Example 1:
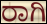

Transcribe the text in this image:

ರಾಗಿ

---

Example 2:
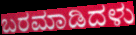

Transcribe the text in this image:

ಬರಮಾಡಿದಳು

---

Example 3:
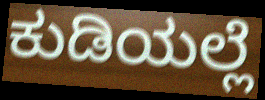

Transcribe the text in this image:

ಕುಡಿಯಲ್ಲೆ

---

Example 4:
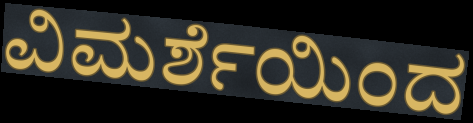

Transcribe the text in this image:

ವಿಮರ್ಶೆಯಿಂದ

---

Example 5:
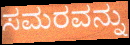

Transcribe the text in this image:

ಸಮರವನ್ನು